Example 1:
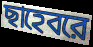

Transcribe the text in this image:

ছাহেবরে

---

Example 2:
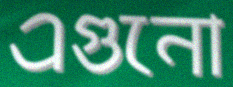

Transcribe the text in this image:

এগুনো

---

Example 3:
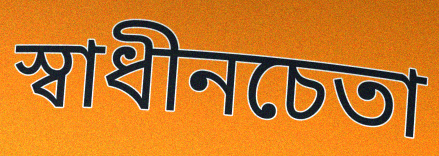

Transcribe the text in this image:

স্বাধীনচেতা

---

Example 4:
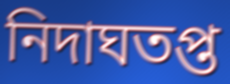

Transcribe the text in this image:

নিদাঘতপ্ত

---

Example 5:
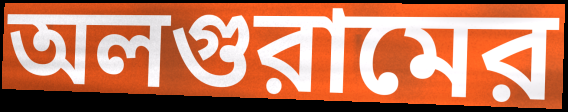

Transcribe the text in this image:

অলগুরামের